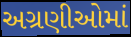
અગ્રણીઓમાં